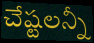
చేష్టలన్నీ